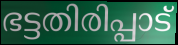
ഭട്ടതിരിപ്പാട്